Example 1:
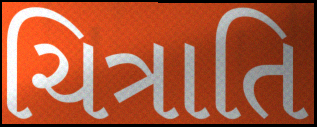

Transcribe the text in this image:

ચિત્રાતિ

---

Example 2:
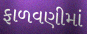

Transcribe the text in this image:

ફાળવણીમાં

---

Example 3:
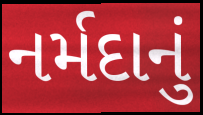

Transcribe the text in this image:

નર્મદાનું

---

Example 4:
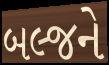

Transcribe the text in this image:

બલ્જને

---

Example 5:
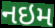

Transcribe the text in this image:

નઇમ